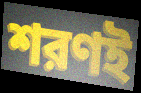
শরণই